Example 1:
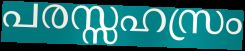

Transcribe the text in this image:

പരസ്സഹസ്രം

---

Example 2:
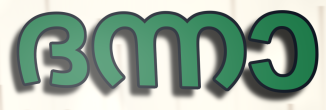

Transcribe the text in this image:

ദന്നാ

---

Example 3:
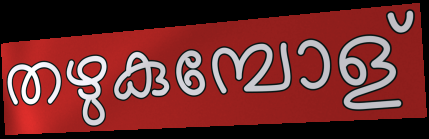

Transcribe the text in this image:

തഴുകുമ്പോള്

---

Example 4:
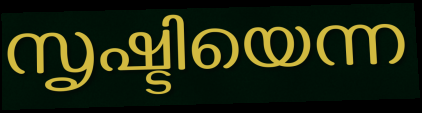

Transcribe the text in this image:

സൃഷ്ടിയെന്ന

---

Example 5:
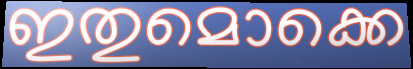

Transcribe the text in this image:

ഇതുമൊക്കെ